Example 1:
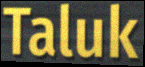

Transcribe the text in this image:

Taluk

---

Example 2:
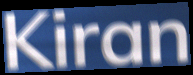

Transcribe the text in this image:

Kiran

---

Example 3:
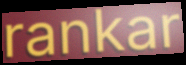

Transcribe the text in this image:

rankar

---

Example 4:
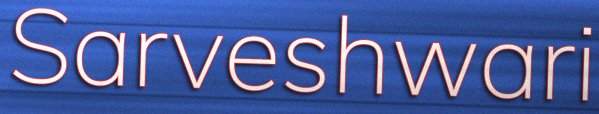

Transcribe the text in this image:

Sarveshwari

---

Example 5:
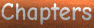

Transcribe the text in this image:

Chapters